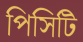
পিসিটি